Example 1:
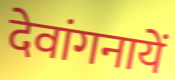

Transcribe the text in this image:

देवांगनायें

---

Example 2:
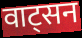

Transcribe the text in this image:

वाट्सन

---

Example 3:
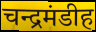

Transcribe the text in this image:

चन्द्रमंडीह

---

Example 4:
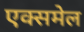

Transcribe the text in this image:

एक्समेल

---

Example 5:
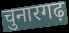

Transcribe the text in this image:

चुनारगढ़